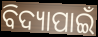
ବିଦ୍ୟାପାଇଁ